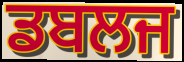
ਡਬਲਜ